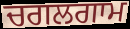
ਚਗਲਗਾਮ